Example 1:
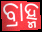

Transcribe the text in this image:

ବ୍ରାହ୍ମ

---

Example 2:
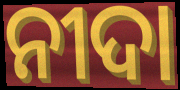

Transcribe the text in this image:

ନୀଦା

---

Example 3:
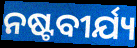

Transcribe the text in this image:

ନଷ୍ଟବୀର୍ଯ୍ୟ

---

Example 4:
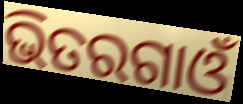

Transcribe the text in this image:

ଭିତରଗାଓଁ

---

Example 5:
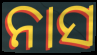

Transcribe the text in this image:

ନାସ